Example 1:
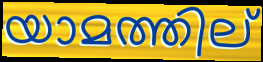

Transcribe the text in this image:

യാമത്തില്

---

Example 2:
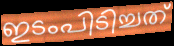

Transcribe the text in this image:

ഇടംപിടിച്ചത്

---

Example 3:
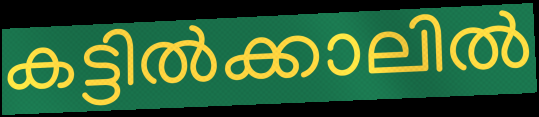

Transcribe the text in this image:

കട്ടിൽക്കാലിൽ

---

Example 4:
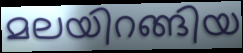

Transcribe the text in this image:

മലയിറങ്ങിയ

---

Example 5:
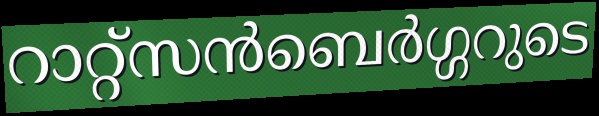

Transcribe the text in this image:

റാറ്റ്സൻബെർഗ്ഗറുടെ